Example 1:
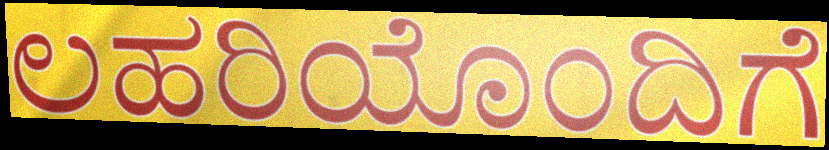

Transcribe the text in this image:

ಲಹರಿಯೊಂದಿಗೆ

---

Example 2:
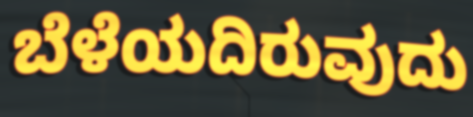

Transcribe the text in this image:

ಬೆಳೆಯದಿರುವುದು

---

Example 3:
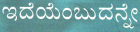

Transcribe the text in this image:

ಇದೆಯೆಂಬುದನ್ನೇ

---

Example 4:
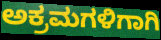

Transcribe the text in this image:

ಅಕ್ರಮಗಳಿಗಾಗಿ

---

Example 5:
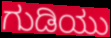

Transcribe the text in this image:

ಗುಡಿಯು